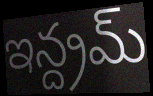
ఇన్ద్రమ్